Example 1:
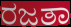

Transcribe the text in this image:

ರಜತಾ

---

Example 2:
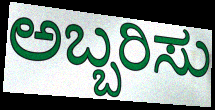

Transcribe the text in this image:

ಅಬ್ಬರಿಸು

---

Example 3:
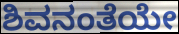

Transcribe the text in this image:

ಶಿವನಂತೆಯೇ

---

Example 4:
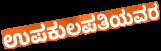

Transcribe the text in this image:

ಉಪಕುಲಪತಿಯವರ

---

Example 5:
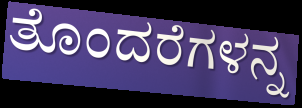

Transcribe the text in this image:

ತೊಂದರೆಗಳನ್ನ